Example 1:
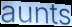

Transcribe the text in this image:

aunts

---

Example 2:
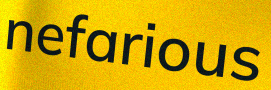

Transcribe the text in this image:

nefarious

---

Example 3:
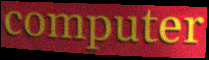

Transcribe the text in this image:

computer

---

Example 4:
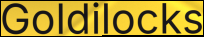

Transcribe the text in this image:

Goldilocks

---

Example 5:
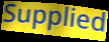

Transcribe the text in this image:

Supplied